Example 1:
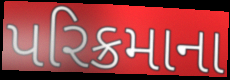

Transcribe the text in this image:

પરિક્રમાના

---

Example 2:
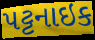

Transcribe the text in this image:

પટ્ટનાઇક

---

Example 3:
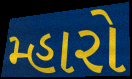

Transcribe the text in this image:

મ્હારો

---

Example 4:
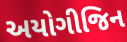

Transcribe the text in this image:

અયોગીજિન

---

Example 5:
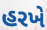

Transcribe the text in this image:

હરખે